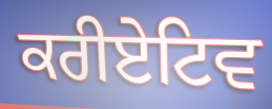
ਕਰੀਏਟਿਵ